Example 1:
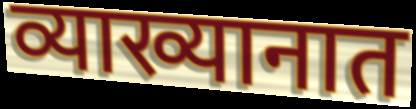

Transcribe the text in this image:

व्याख्यानात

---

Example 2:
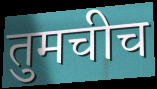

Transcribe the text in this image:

तुमचीच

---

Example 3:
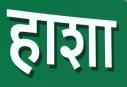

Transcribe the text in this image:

हाशा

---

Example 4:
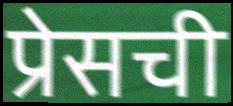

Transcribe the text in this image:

प्रेसची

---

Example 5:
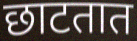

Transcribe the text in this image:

छाटतात